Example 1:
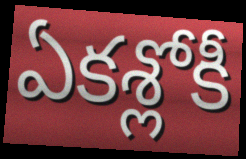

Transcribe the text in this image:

ఏకశ్లోకీ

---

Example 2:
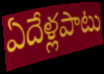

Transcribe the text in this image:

ఏదేళ్లపాటు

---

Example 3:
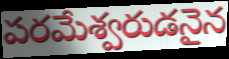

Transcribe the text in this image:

పరమేశ్వరుడనైన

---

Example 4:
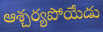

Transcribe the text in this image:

ఆశ్చర్యపోయేడు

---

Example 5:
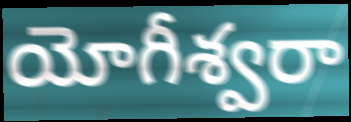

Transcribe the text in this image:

యోగీశ్వరా